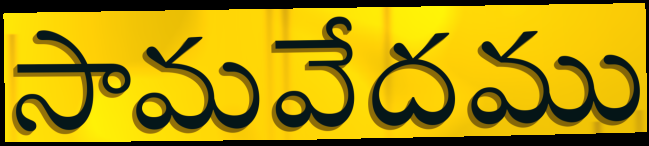
సామవేదము